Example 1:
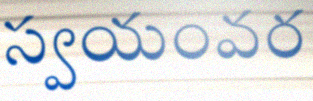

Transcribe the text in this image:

స్వయంవర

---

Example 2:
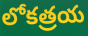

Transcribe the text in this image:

లోకత్రయ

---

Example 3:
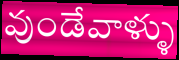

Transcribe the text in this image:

వుండేవాళ్ళు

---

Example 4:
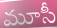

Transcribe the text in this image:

మూసీ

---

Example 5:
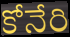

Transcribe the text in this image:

కోనేరి